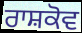
ਰਾਸ਼ਕੋਵ